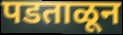
पडताळून